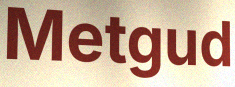
Metgud